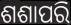
ଶଶାପରି